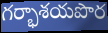
గర్భాశయపొర